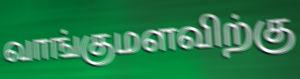
வாங்குமளவிற்கு